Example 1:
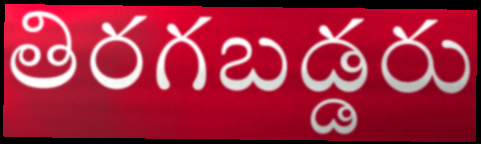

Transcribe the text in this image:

తిరగబడ్డరు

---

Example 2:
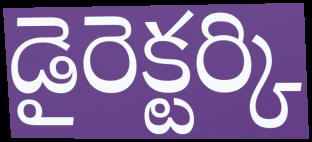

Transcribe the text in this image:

డైరెక్టర్కి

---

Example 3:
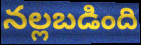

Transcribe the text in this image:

నల్లబడింది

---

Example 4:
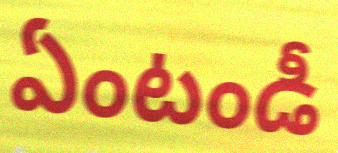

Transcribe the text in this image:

ఏంటండీ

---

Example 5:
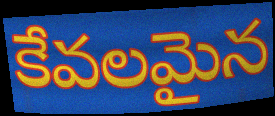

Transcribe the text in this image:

కేవలమైన